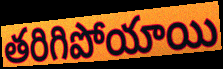
తరిగిపోయాయి